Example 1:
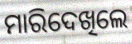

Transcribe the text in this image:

ମାରିଦେଖିଲେ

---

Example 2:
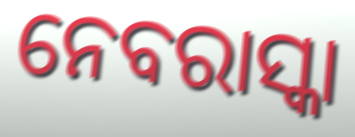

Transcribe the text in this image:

ନେବରାସ୍କା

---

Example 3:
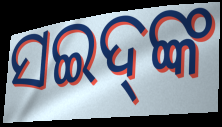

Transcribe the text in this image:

ସଇଦ୍‌ଙ୍କ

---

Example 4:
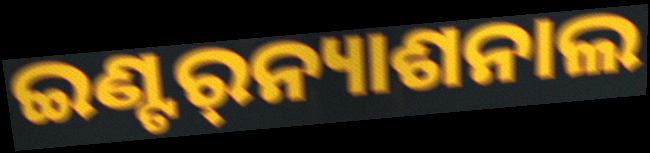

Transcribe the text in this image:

ଇଣ୍ଟର୍‌ନ୍ୟାଶନାଲ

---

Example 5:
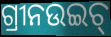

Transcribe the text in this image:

ଗ୍ରୀନଉଇଚ୍